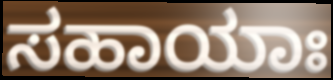
ಸಹಾಯಾಃ